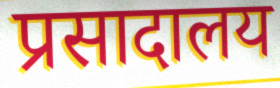
प्रसादालय